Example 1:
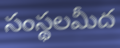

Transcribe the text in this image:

సంస్థలమీద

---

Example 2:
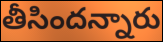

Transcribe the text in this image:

తీసిందన్నారు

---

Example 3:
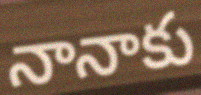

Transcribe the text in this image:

నానాకు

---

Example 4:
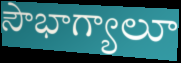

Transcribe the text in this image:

సౌభాగ్యాలూ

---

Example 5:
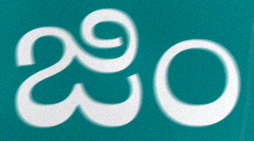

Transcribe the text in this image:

జిం